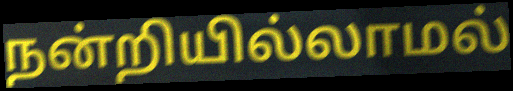
நன்றியில்லாமல்